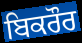
ਬਿਕਰੌਰ